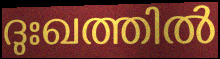
ദുഃഖത്തിൽ